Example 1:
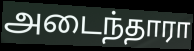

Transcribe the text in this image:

அடைந்தாரா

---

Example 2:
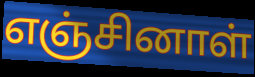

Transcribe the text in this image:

எஞ்சினாள்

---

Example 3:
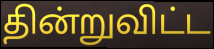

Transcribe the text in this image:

தின்றுவிட்ட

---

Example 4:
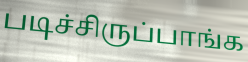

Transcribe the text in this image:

படிச்சிருப்பாங்க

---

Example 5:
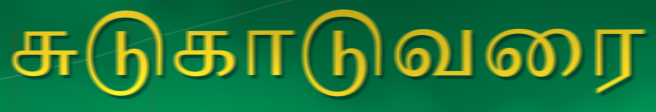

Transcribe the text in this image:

சுடுகாடுவரை